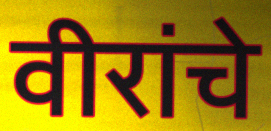
वीरांचे